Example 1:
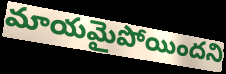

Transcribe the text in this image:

మాయమైపోయిందని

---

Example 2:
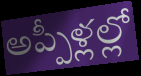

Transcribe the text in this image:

అప్పీళ్లల్లో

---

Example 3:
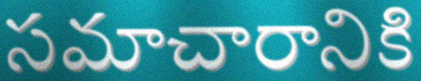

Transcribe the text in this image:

సమాచారానికి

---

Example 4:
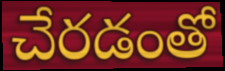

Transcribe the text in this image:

చేరడంతో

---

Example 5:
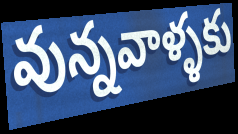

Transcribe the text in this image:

వున్నవాళ్ళకు